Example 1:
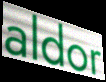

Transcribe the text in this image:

aldor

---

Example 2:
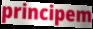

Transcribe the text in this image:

principem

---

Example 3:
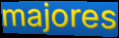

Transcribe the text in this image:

majores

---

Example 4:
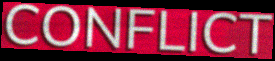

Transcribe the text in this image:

CONFLICT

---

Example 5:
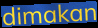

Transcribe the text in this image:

dimakan